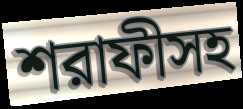
শরাফীসহ